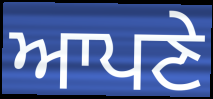
ਆਪਣੇ